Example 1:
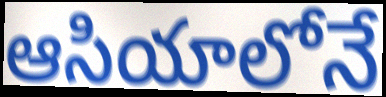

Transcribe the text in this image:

ఆసియాలోనే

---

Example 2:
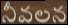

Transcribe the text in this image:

నీవలన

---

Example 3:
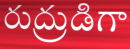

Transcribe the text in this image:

రుద్రుడిగా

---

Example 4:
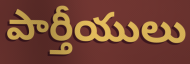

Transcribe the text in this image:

పార్తీయులు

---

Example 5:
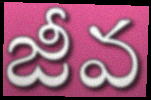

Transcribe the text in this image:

జీవ